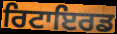
ਰਿਟਾਇਰਡ